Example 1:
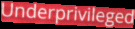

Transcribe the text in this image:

Underprivileged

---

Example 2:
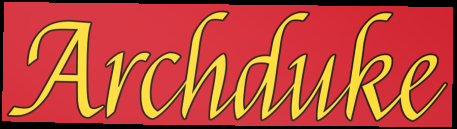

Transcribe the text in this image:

Archduke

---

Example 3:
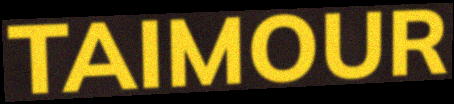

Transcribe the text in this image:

TAIMOUR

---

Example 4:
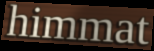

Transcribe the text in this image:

himmat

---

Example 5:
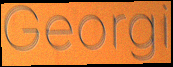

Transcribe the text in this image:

Georgi